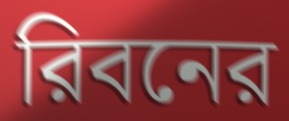
রিবনের